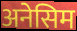
अनेसिम